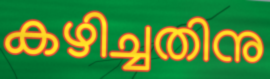
കഴിച്ചതിനു